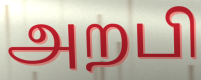
அறபி